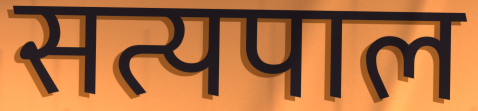
सत्यपाल